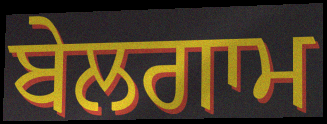
ਬੇਲਗਾਮ